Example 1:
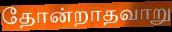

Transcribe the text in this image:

தோன்றாதவாறு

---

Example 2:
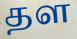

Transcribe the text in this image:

தள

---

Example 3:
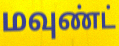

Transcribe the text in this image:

மவுண்ட்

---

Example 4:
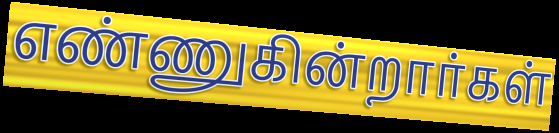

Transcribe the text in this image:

எண்ணுகின்றார்கள்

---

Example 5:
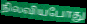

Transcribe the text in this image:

நிலவியபோது